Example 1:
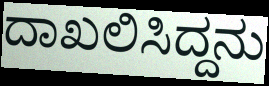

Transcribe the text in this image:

ದಾಖಲಿಸಿದ್ದನು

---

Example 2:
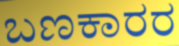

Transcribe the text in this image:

ಬಣಕಾರರ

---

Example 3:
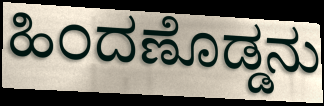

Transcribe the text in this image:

ಹಿಂದಣೊಡ್ಡನು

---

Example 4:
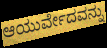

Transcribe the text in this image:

ಆಯುರ್ವೇದವನ್ನು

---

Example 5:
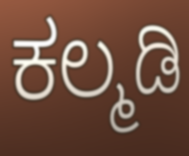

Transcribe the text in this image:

ಕಲ್ಮಡಿ